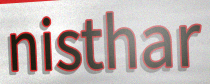
nisthar